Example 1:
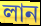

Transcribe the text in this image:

লান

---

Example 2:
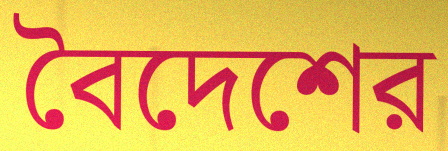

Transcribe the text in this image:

বৈদেশের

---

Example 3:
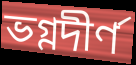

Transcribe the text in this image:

ভগ্নদীর্ণ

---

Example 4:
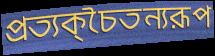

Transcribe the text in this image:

প্রত্যক্‌চৈতন্যরূপ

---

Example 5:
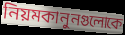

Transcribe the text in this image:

নিয়মকানুনগুলোকে